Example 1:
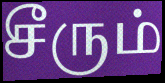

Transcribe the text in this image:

சீரும்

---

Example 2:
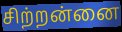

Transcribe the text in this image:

சிற்றன்னை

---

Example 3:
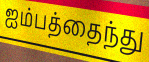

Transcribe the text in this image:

ஐம்பத்தைந்து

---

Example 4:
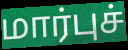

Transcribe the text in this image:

மார்புச்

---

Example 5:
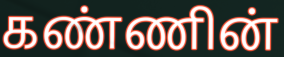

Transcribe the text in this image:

கண்ணின்